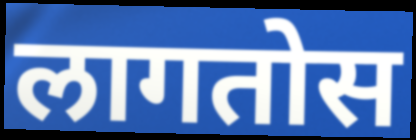
लागतोस